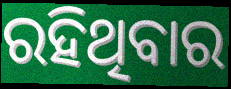
ରହିଥିବାର